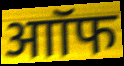
आॉफ